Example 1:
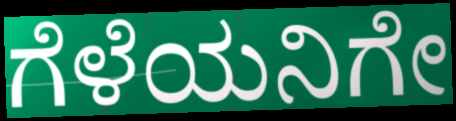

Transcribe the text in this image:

ಗೆಳೆಯನಿಗೇ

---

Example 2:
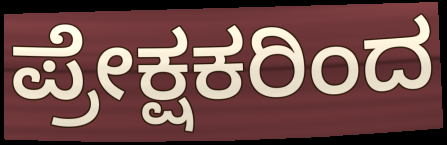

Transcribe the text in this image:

ಪ್ರೇಕ್ಷಕರಿಂದ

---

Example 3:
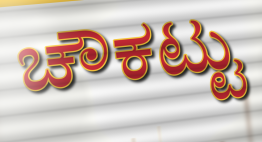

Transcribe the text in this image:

ಚೌಕಟ್ಟು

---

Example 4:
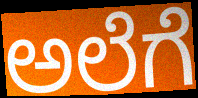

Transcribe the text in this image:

ಅಲೆಗೆ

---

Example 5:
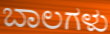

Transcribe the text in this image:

ಬಾಲಗಳು